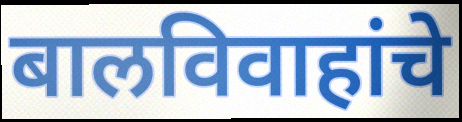
बालविवाहांचे